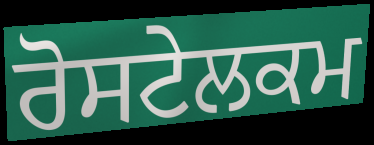
ਰੋਸਟੇਲਕਮ